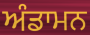
ਅੰਡਾਮਨ